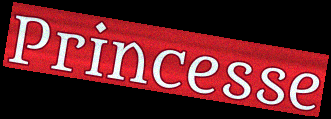
Princesse